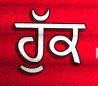
ਹੁੱਕ